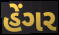
હેંગર